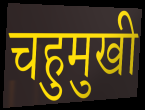
चहुमुखी